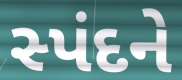
સ્પંદને